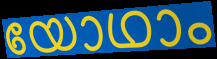
യോഥാം